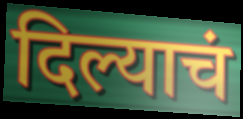
दिल्याचं